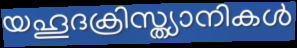
യഹൂദക്രിസ്ത്യാനികൾ